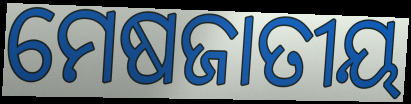
ମେଷଜାତୀୟ